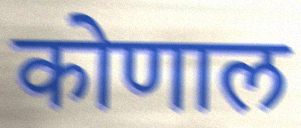
कोणाल